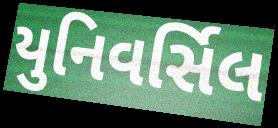
યુનિવર્સિલ